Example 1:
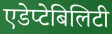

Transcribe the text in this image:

एडेप्टेबिलिटी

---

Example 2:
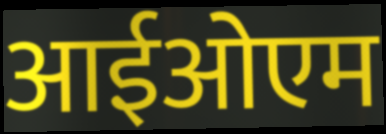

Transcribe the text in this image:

आईओएम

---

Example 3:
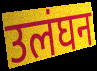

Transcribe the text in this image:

उलंघन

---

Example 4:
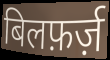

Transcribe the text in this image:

बिलफ़र्ज़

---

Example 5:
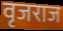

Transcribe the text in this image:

वृजराज